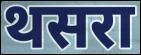
थसरा